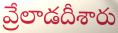
వ్రేలాడదీశారు